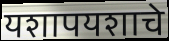
यशापयशाचे